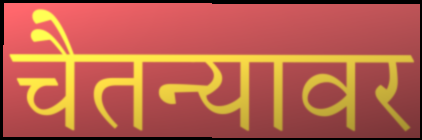
चैतन्यावर